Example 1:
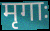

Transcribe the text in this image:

मृगाः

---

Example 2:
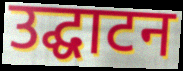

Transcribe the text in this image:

उद्घाटन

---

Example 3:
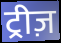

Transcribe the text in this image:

ट्रीज़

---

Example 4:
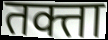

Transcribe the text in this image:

तक्ता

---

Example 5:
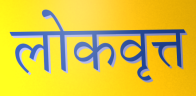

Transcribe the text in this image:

लोकवृत्त